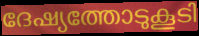
ദേഷ്യത്തോടുകൂടി